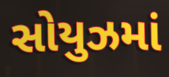
સોયુઝમાં